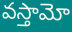
వస్తామో